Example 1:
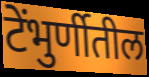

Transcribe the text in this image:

टेंभुर्णीतील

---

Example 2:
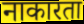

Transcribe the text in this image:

नाकारता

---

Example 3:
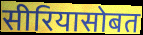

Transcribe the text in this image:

सीरियासोबत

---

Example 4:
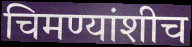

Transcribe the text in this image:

चिमण्यांशीच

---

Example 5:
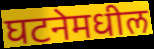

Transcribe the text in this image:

घटनेमधील